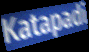
Katapadi